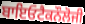
ਬਾਇਓਟੈਕਨੌਲੋਜੀ